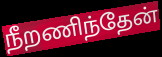
நீறணிந்தேன்